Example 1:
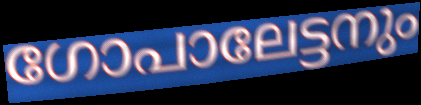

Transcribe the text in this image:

ഗോപാലേട്ടനും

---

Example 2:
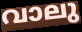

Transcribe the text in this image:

വാലു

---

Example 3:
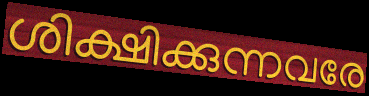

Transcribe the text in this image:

ശിക്ഷിക്കുന്നവരേ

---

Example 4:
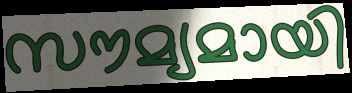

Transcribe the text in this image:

സൗമ്യമായി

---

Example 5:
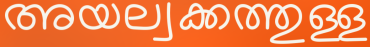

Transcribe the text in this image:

അയല്വക്കത്തുള്ള